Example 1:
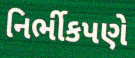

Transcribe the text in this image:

નિર્ભીકપણે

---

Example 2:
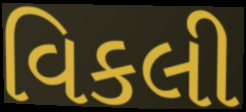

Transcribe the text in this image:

વિકલી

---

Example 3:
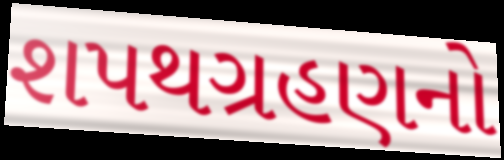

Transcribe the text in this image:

શપથગ્રહણનો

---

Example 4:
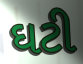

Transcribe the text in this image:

ઘટી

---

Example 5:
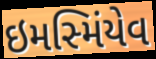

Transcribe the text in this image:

ઇમસ્મિંયેવ